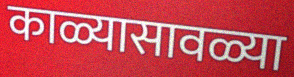
काळ्यासावळ्या